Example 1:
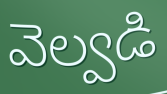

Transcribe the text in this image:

వెల్వడి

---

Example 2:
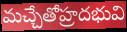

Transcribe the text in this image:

మచ్చేతోహ్రదభువి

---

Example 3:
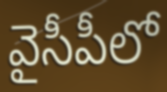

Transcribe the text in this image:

వైసీపీలో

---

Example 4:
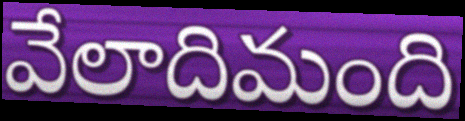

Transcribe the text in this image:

వేలాదిమంది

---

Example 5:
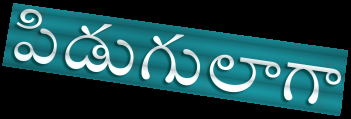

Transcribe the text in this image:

పిడుగులాగా